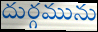
దుర్గమును